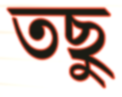
তছু